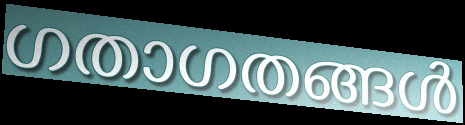
ഗതാഗതങ്ങൾ